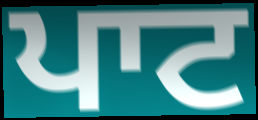
ਪਾਟ